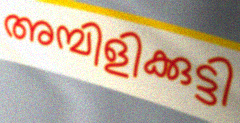
അമ്പിളിക്കുട്ടി